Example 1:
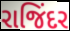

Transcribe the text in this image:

રાજિંદર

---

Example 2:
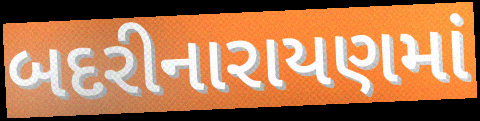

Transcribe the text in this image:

બદરીનારાયણમાં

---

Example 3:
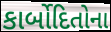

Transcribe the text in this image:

કાર્બોદિતોના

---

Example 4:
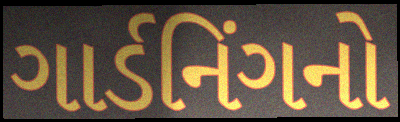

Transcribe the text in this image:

ગાર્ડનિંગનો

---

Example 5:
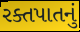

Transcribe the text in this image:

રક્તપાતનું